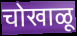
चोखाळू